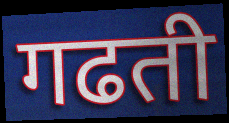
गढती